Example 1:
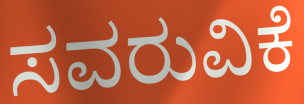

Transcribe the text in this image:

ಸವರುವಿಕೆ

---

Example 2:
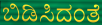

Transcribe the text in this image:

ಬಿಡಿಸಿದಂತೆ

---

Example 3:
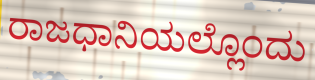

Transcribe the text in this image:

ರಾಜಧಾನಿಯಲ್ಲೊಂದು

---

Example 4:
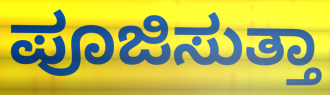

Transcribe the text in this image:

ಪೂಜಿಸುತ್ತಾ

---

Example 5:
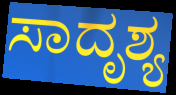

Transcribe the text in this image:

ಸಾದೃಶ್ಯ